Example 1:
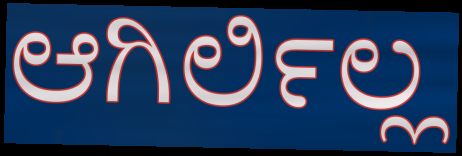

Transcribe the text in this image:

ಆಗಿರ್ಲಿಲ್ಲ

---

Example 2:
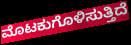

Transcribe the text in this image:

ಮೊಟಕುಗೊಳಿಸುತ್ತಿದೆ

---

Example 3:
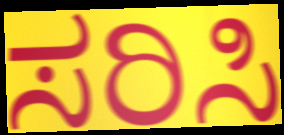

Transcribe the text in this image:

ಸರಿಸಿ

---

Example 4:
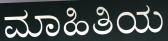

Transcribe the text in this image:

ಮಾಹಿತಿಯ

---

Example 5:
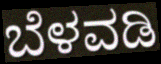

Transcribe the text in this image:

ಬೆಳವಡಿ